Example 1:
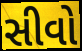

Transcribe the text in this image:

સીવો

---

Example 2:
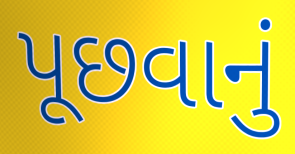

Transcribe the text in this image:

પૂછવાનું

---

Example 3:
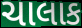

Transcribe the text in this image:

ચાલાક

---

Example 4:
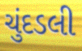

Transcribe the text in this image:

ચુંદડલી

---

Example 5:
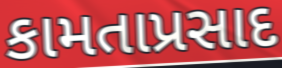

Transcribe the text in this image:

કામતાપ્રસાદ